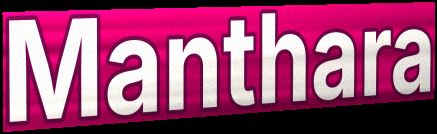
Manthara